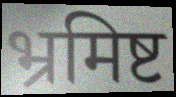
भ्रमिष्ट